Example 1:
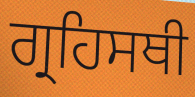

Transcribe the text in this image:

ਗ੍ਰਹਿਸਥੀ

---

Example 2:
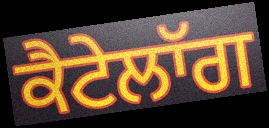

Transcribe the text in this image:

ਕੈਟੇਲਾੱਗ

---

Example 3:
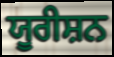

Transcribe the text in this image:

ਯੂਰੀਸ਼ਨ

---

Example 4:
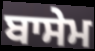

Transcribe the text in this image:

ਬਾਸੇਮ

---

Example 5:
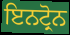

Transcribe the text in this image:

ਇਨਟ੍ਰੋਨ